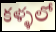
కళ్ళలో